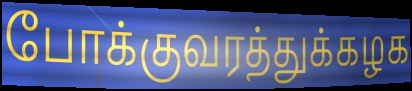
போக்குவரத்துக்கழக